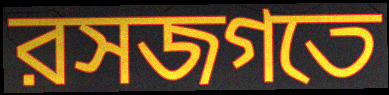
রসজগতে